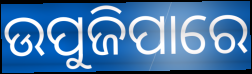
ଉପୁଜିପାରେ